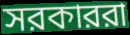
সরকাররা